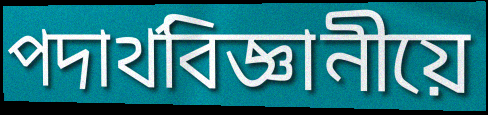
পদাৰ্থবিজ্ঞানীয়ে